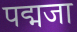
पद्मजा